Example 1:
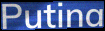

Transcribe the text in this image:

Putina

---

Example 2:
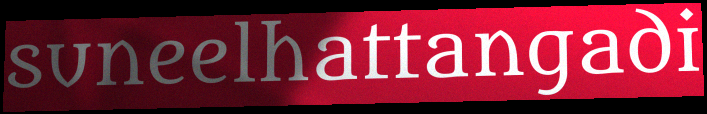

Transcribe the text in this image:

suneelhattangadi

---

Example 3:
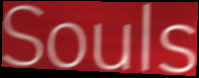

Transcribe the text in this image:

Souls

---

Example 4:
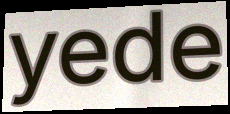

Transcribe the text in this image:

yede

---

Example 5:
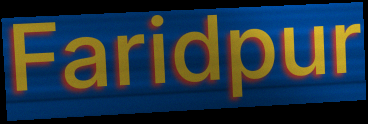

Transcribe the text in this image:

Faridpur